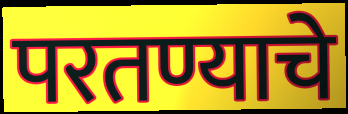
परतण्याचे